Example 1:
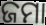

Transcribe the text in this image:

ଜମା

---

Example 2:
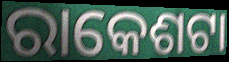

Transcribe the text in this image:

ରାକେଶଟା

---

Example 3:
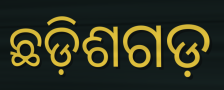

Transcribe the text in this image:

ଛଡ଼ିଶଗଡ଼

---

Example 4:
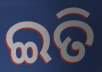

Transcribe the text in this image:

ଇତି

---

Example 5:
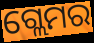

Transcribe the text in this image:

ଗ୍ଲେମର